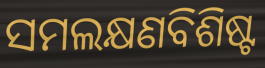
ସମଲକ୍ଷଣବିଶିଷ୍ଟ